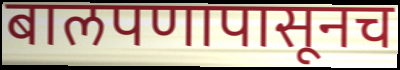
बालपणापासूनच